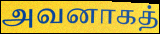
அவனாகத்